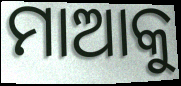
ମାଆକୁ